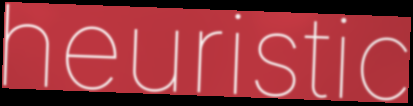
heuristic